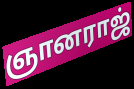
ஞானராஜ்